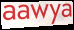
aawya